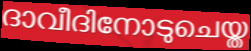
ദാവീദിനോടുചെയ്ത